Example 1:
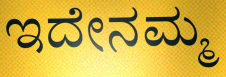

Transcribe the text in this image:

ಇದೇನಮ್ಮ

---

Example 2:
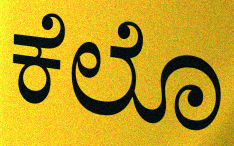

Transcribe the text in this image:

ಕೆಲೊ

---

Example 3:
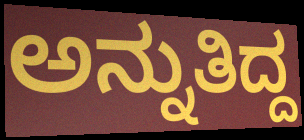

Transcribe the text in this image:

ಅನ್ನುತಿದ್ದ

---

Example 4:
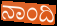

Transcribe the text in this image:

ನಾಂದಿ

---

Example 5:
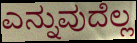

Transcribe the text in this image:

ಎನ್ನುವುದೆಲ್ಲ